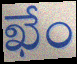
ఖేం